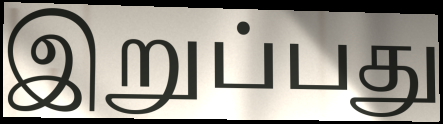
இறுப்பது